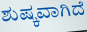
ಶುಷ್ಕವಾಗಿದೆ